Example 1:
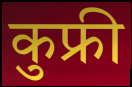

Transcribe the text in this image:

कुफ्री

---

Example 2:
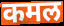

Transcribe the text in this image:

कमल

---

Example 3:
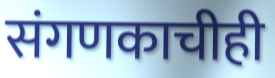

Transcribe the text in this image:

संगणकाचीही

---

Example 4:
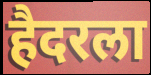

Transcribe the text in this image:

हैदरला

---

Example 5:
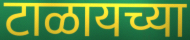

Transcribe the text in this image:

टाळायच्या